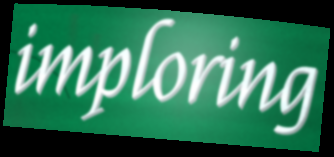
imploring